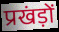
प्रखंड़ों